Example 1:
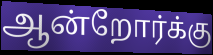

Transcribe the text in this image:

ஆன்றோர்க்கு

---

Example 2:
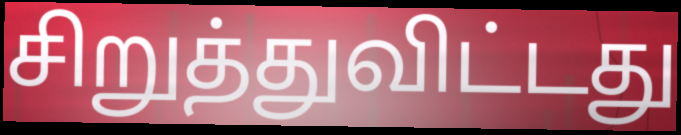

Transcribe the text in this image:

சிறுத்துவிட்டது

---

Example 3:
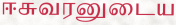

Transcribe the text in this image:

ஈசுவரனுடைய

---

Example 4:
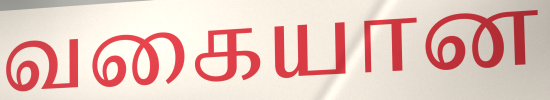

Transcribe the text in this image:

வகையான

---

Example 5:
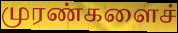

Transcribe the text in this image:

முரண்களைச்